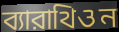
ব্যারাথিওন